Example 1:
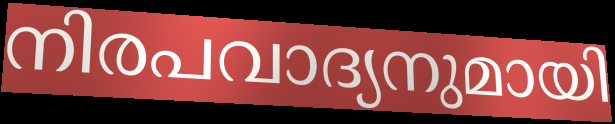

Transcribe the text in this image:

നിരപവാദ്യനുമായി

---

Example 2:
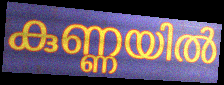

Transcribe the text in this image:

കുണ്ണയിൽ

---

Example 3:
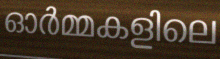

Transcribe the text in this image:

ഓർമ്മകളിലെ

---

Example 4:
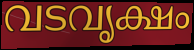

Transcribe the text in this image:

വടവൃക്ഷം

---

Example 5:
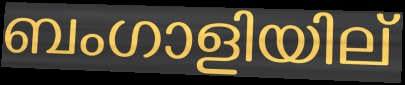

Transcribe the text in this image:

ബംഗാളിയില്